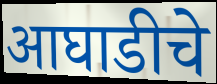
आघाडीचे